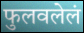
फुलवलेलं